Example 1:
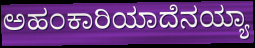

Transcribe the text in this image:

ಅಹಂಕಾರಿಯಾದೆನಯ್ಯಾ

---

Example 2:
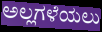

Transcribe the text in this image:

ಅಲ್ಲಗಳೆಯಲು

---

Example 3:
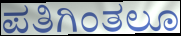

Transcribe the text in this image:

ಪತಿಗಿಂತಲೂ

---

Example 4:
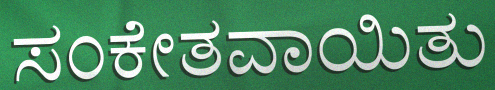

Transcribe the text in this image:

ಸಂಕೇತವಾಯಿತು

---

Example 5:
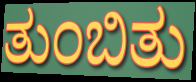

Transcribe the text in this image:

ತುಂಬಿತು